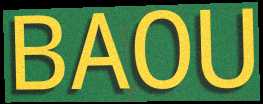
BAOU